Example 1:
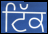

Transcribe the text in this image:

ਟਿੱਕ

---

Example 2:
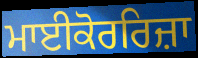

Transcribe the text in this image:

ਮਾਈਕੋਰਰਿਜ਼ਾ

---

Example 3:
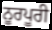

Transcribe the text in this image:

ਨੂਰਪੂਰੀ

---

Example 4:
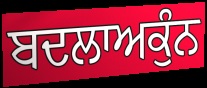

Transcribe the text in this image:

ਬਦਲਾਅਕੁੰਨ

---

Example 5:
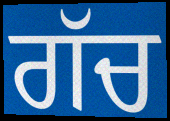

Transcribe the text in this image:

ਗੱਚ